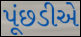
પૂંછડીએ